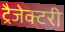
ट्रैजेक्टरी